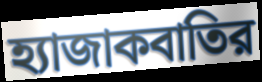
হ্যাজাকবাতির